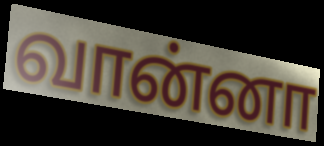
வான்னா